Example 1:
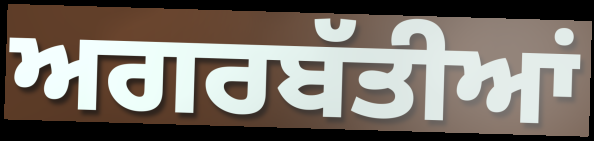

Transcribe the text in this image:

ਅਗਰਬੱਤੀਆਂ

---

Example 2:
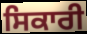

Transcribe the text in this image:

ਸਿਕਾਰੀ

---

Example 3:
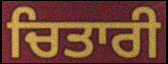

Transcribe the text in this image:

ਚਿਤਾਰੀ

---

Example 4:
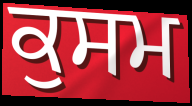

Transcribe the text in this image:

ਕੁਸਮ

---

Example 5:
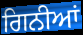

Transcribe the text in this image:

ਗਿਨੀਆਂ